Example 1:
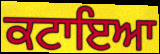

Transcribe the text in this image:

ਕਟਾਇਆ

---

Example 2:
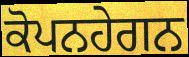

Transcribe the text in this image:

ਕੋਪਨਹੇਗਨ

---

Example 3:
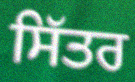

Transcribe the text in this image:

ਸਿੱਤਰ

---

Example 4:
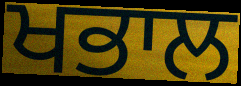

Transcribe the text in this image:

ਖਭਾਲ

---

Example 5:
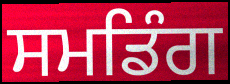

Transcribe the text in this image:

ਸਮਡਿੰਗ